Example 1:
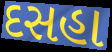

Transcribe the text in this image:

દસહા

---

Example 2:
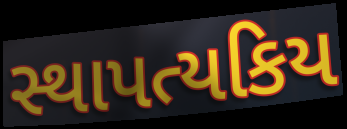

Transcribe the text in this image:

સ્થાપત્યકિય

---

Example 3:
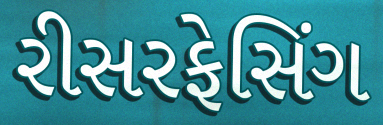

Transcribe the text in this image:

રીસરફેસિંગ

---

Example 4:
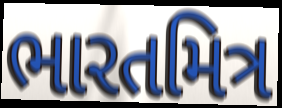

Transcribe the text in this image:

ભારતમિત્ર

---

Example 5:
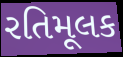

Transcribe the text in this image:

રતિમૂલક